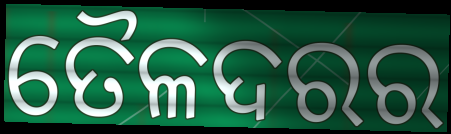
ତୈଳଦରର